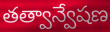
తత్వాన్వేషణ